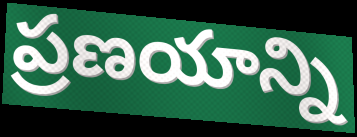
ప్రణయాన్ని